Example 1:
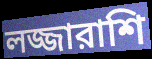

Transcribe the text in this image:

লজ্জারাশি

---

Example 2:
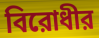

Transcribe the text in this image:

বিরোধীর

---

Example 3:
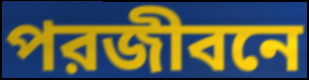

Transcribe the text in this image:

পরজীবনে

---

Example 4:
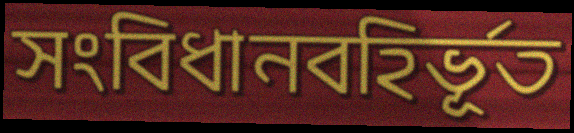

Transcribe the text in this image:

সংবিধানবহির্ভূত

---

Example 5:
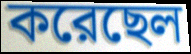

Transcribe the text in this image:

করেছেল